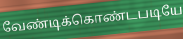
வேண்டிக்கொண்டபடியே